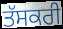
ਤੱਸਕਰੀ